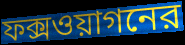
ফক্সওয়াগনের